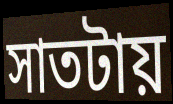
সাতটায়